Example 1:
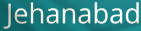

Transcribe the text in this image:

Jehanabad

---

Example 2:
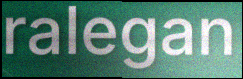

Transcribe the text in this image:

ralegan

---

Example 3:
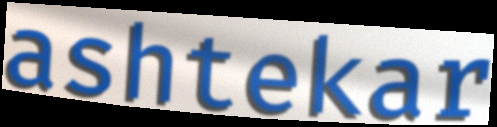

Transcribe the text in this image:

ashtekar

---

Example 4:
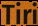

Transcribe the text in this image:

Tiri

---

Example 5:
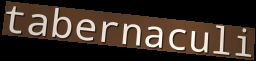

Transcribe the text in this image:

tabernaculi